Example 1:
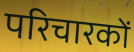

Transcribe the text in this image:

परिचारकों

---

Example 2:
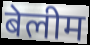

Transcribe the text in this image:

बेलीम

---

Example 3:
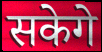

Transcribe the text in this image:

सकेगे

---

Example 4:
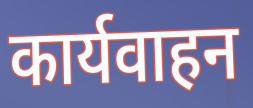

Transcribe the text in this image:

कार्यवाहन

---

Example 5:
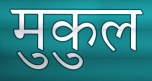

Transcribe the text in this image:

मुकुल